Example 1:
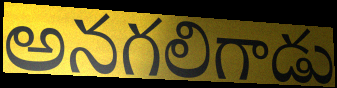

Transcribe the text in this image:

అనగలిగాడు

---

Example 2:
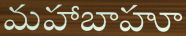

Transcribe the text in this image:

మహాబాహూ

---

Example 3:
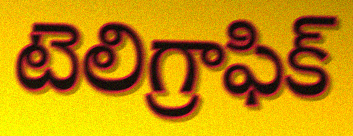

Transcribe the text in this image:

టెలిగ్రాఫిక్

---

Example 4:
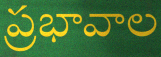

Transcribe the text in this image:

ప్రభావాల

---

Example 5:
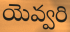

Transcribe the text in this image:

యెవ్వరి